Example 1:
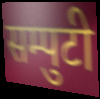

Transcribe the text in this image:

सम्पुटी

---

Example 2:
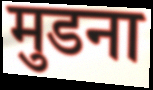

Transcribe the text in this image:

मुडना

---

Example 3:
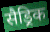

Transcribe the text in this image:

सैड्रिक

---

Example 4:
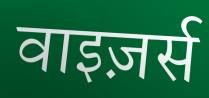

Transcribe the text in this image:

वाइज़र्स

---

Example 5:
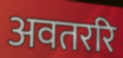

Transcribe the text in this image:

अवतररि